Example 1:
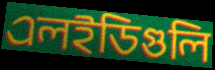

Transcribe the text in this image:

এলইডিগুলি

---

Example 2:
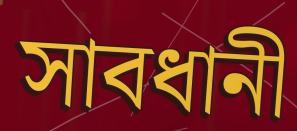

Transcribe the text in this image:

সাবধানী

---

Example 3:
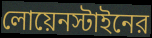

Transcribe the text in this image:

লোয়েনস্টাইনের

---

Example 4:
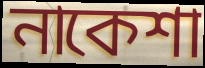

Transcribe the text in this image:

নাকেশা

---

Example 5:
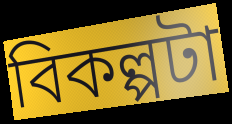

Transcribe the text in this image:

বিকল্পটা